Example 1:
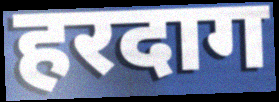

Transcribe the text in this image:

हरदाग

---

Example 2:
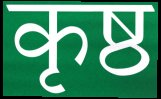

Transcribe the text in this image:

कृष्ठ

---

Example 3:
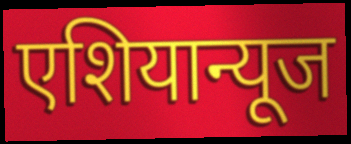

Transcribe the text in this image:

एशियान्यूज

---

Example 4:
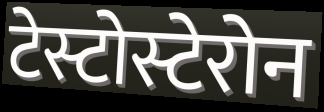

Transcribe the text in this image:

टेस्‍टोस्‍टेरोन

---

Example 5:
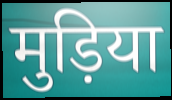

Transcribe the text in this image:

मुड़िया